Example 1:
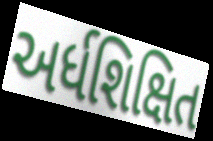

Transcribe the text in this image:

અર્ધશિક્ષિત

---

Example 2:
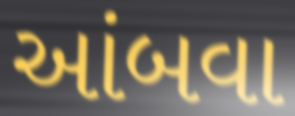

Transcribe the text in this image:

આંબવા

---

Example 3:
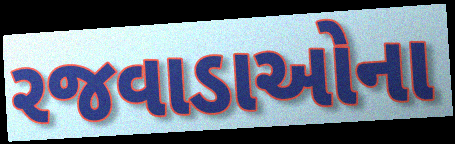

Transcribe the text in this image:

રજવાડાઓના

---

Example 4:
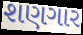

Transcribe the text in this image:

શણગાર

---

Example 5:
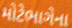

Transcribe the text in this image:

મોટેભાગેના